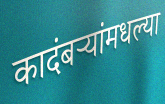
कादंबऱ्यांमधल्या